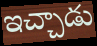
ఇచ్చాడు